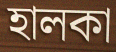
হালকা